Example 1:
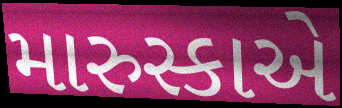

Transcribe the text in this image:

મારુસ્કાએ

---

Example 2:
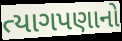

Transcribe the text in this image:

ત્યાગપણાનો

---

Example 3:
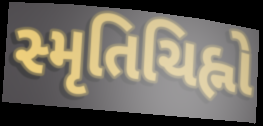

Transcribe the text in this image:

સ્મૃતિચિહ્નો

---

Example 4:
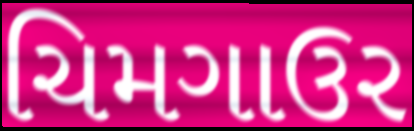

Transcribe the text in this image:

ચિમગાઉર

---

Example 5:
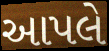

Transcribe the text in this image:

આપલે